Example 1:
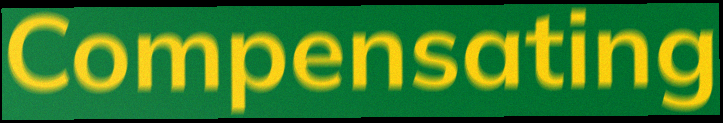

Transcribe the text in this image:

Compensating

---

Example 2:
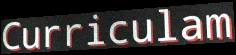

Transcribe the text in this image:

Curriculam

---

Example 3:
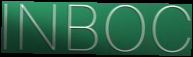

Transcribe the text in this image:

INBOC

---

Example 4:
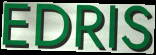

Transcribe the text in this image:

EDRIS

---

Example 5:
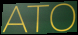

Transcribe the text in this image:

ATO